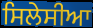
ਸਿਲੇਸੀਆ